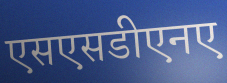
एसएसडीएनए